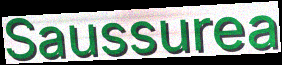
Saussurea